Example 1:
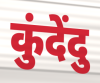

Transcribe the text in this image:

कुंदेंदु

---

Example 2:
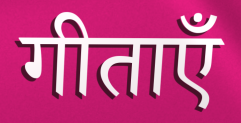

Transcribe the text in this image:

गीताएँ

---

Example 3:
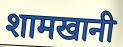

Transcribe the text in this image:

शामखानी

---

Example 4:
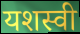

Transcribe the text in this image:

यशस्वी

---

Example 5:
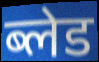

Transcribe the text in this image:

ब्लेड